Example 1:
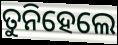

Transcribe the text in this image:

ତୁନିହେଲେ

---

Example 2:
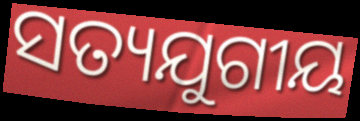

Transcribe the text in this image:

ସତ୍ୟଯୁଗୀୟ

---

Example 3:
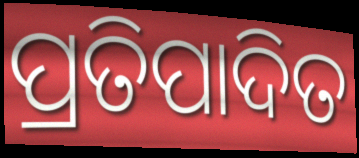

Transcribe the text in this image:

ପ୍ରତିପାଦିତ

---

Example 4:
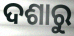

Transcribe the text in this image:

ଦଶାରୁ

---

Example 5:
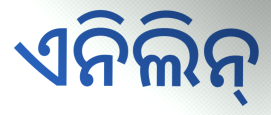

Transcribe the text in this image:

ଏନିଲିନ୍